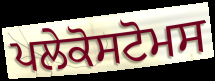
ਪਲੇਕੋਸਟੋਮਸ